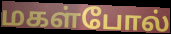
மகள்போல்